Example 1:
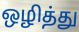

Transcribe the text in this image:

ஒழித்து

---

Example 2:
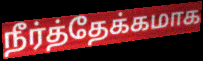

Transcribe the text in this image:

நீர்த்தேக்கமாக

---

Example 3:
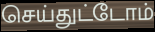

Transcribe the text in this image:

செய்துட்டோம்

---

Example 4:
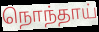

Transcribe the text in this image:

நொந்தாய்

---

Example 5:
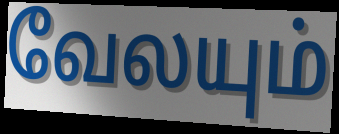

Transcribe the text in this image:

வேலயும்